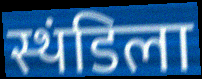
स्थंडिला